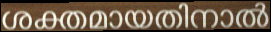
ശക്തമായതിനാൽ